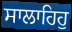
ਸਾਲਾਹਿਹੁ